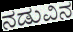
ನಡುವಿನ